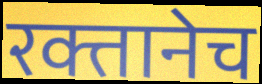
रक्तानेच